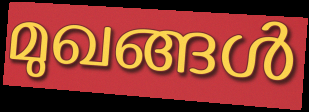
മുഖങ്ങൾ